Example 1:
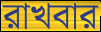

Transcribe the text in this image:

রাখবার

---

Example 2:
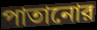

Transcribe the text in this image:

পাতানোর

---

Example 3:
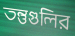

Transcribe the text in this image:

তন্তুগুলির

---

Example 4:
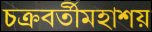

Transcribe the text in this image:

চক্রবর্তীমহাশয়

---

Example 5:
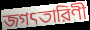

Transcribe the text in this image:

জগৎতারিণী